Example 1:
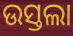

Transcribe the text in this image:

ଉସ୍ତଲା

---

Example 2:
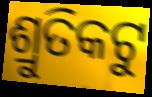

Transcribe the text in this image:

ଶ୍ରୁତିକଟୁ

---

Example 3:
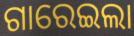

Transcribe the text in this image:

ଗାରେଇଲା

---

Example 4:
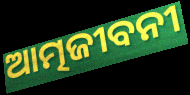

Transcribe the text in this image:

ଆତ୍ମଜୀବନୀ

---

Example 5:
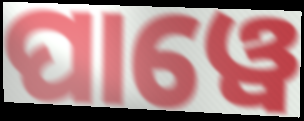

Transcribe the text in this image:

ପାୱେ